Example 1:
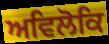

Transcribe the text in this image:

ਅਵਿਲੋਕਿ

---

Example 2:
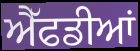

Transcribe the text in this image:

ਐੱਫਡੀਆਂ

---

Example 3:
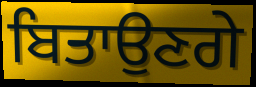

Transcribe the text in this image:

ਬਿਤਾਉਣਗੇ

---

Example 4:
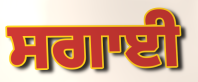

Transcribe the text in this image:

ਸਗਾਈ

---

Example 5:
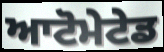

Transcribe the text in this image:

ਆਟੋਮੇਟੇਡ